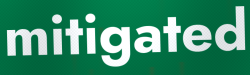
mitigated